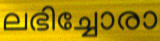
ലഭിച്ചോരാ